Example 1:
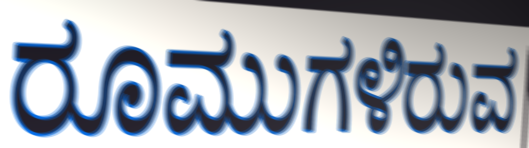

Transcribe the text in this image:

ರೂಮುಗಳಿರುವ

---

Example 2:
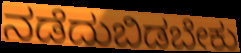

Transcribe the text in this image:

ನಡೆದುಬಿಡಬೇಕು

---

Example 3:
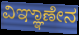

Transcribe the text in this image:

ವಿಞ್ಞಾಣೇನ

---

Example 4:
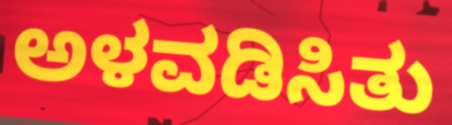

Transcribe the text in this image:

ಅಳವಡಿಸಿತು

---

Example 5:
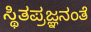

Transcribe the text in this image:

ಸ್ಥಿತಪ್ರಜ್ಞನಂತೆ